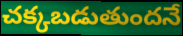
చక్కబడుతుందనే